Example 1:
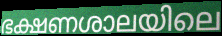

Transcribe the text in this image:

ഭക്ഷണശാലയിലെ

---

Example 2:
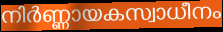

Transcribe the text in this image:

നിർണ്ണായകസ്വാധീനം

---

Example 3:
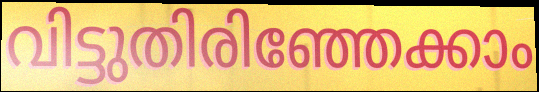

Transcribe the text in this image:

വിട്ടുതിരിഞ്ഞേക്കാം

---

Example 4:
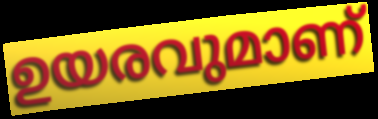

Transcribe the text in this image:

ഉയരവുമാണ്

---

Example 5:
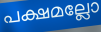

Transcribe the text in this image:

പക്ഷമല്ലോ